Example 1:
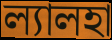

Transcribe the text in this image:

ল্যালহা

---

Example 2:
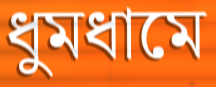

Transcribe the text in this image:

ধুমধামে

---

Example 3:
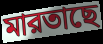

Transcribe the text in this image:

মারতাছে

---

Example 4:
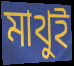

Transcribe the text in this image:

মাথুই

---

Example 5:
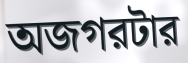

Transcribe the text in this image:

অজগরটার